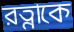
রত্নাকে